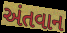
અંતવાન